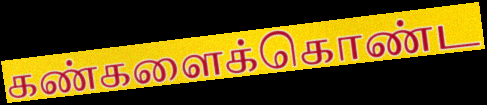
கண்களைக்கொண்ட